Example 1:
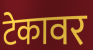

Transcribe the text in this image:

टेकावर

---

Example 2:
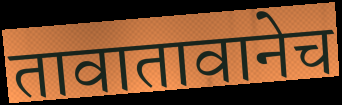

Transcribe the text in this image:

तावातावानेच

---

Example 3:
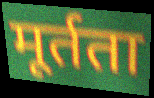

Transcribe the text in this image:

मूर्तता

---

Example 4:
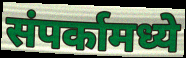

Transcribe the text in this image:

संपर्कामध्ये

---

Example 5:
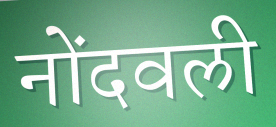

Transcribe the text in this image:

नोंदवली